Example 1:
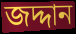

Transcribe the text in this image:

জদ্দান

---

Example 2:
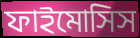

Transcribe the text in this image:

ফাইমোসিস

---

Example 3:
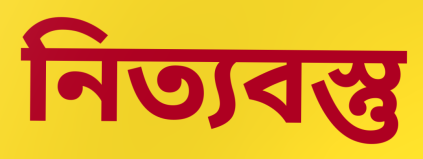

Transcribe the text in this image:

নিত্যবস্তু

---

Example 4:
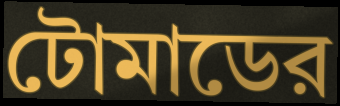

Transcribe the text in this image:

টোমাডের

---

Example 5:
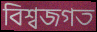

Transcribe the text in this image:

বিশ্বজগত